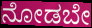
ನೋಡಬೇ